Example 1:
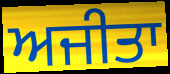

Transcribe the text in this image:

ਅਜੀਤਾ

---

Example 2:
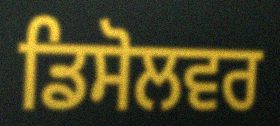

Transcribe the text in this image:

ਡਿਸੋਲਵਰ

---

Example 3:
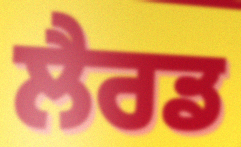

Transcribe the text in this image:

ਲੈਰਡ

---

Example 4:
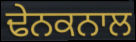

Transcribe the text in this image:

ਢੇਨਕਨਾਲ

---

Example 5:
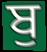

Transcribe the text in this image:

ਬੁ